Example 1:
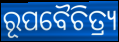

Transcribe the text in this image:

ରୂପବୈଚିତ୍ର୍ୟ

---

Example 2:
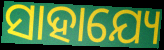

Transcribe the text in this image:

ସାହାଯ୍ୟେ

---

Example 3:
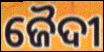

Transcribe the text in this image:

ଜୈଦୀ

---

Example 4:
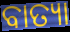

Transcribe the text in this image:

ବାତ୍ଯା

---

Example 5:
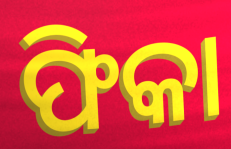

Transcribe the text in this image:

ଫିକା